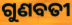
ଗୁଣବତୀ